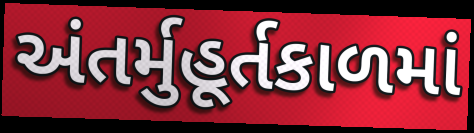
અંતર્મુહૂર્તકાળમાં